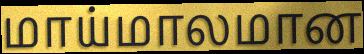
மாய்மாலமான